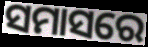
ସମାସରେ